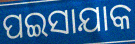
ପଇସାଯାକ